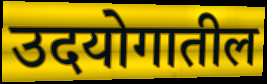
उदयोगातील